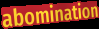
abomination